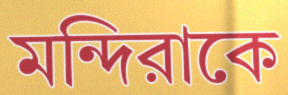
মন্দিরাকে